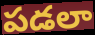
పడలా